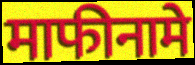
माफीनामे